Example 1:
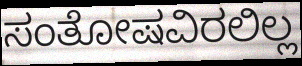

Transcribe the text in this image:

ಸಂತೋಷವಿರಲಿಲ್ಲ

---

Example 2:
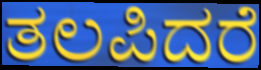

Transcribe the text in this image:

ತಲಪಿದರೆ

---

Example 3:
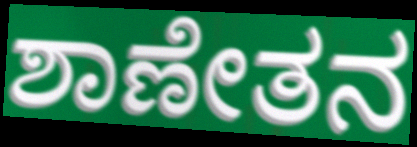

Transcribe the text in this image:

ಶಾಣೇತನ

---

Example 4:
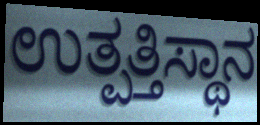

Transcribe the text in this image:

ಉತ್ಪತ್ತಿಸ್ಥಾನ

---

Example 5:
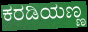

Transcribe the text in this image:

ಕರಡಿಯಣ್ಣ